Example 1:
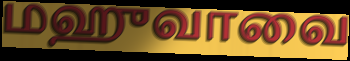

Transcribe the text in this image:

மஹுவாவை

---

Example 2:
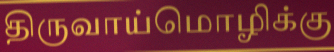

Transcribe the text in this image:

திருவாய்மொழிக்கு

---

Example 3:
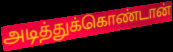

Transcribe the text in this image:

அடித்துக்கொண்டான்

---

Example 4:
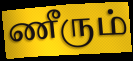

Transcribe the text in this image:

ணீரும்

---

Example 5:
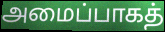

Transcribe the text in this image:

அமைப்பாகத்